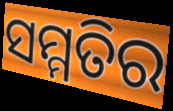
ସମ୍ମତିର